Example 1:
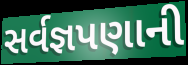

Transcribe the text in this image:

સર્વજ્ઞપણાની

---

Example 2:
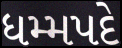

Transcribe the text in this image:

ધમ્મપદે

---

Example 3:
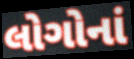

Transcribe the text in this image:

લોગોનાં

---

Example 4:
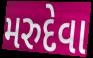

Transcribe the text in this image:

મરુદેવા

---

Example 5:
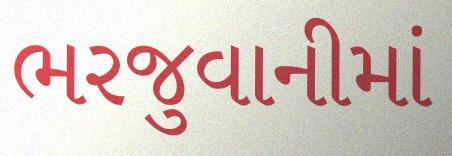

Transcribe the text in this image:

ભરજુવાનીમાં